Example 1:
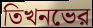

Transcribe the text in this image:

তিখনভের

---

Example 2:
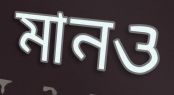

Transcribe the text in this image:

মানও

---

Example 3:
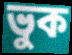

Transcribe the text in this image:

ভুক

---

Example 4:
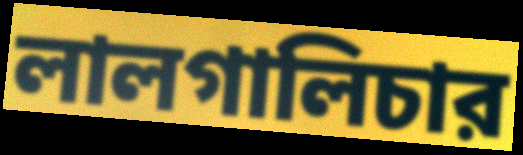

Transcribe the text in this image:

লালগালিচার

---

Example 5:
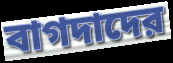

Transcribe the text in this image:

বাগদাদের